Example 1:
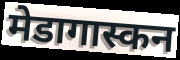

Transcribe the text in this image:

मेडागास्कन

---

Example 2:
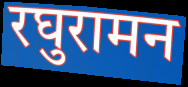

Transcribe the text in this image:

रघुरामन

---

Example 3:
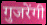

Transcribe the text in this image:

गुजरेंगी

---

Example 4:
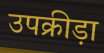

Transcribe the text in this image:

उपक्रीड़ा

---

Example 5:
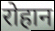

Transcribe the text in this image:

रोहान